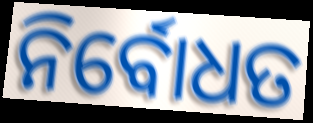
ନିର୍ବୋଧତ